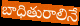
బాధితురాలినే